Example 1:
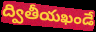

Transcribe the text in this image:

ద్వితీయఖండే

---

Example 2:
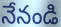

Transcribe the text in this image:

నేనండి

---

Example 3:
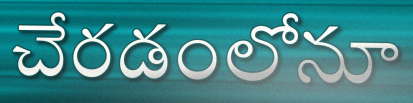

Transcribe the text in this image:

చేరడంలోనూ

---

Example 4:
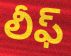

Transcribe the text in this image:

లీఫ్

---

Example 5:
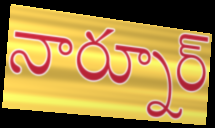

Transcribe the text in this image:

నార్నూర్